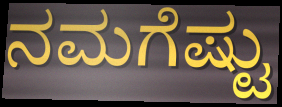
ನಮಗೆಷ್ಟು